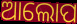
ଆଲୋପ